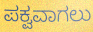
ಪಕ್ವವಾಗಲು